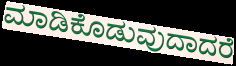
ಮಾಡಿಕೊಡುವುದಾದರೆ